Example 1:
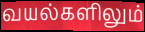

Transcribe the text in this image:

வயல்களிலும்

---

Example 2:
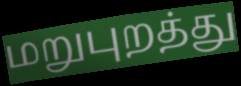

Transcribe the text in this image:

மறுபுறத்து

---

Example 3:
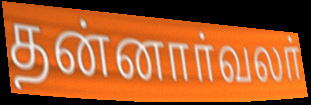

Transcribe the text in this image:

தன்னார்வலர்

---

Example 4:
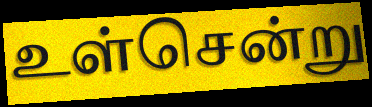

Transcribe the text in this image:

உள்சென்று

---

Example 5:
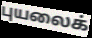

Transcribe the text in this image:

புயலைக்